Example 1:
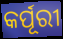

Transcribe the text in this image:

କର୍ପୂରୀ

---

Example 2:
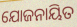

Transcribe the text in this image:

ଯୋଜନାୟିତ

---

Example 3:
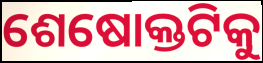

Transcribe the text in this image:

ଶେଷୋକ୍ତଟିକୁ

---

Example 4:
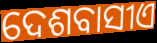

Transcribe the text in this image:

ଦେଶବାସୀଏ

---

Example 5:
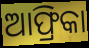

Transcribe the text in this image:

ଆଫ୍ରିକା